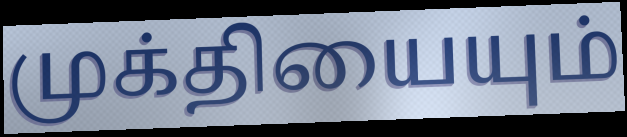
முக்தியையும்